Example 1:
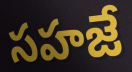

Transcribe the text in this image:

సహజే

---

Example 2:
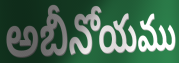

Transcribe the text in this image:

అబీనోయము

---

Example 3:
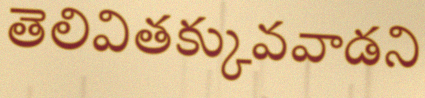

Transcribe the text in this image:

తెలివితక్కువవాడని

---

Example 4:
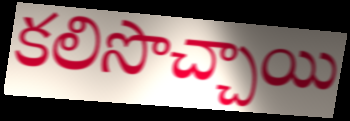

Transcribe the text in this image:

కలిసొచ్చాయి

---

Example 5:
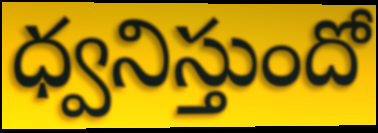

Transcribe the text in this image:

ధ్వనిస్తుందో